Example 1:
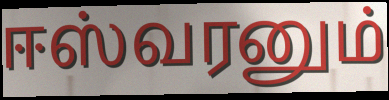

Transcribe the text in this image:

ஈஸ்வரனும்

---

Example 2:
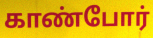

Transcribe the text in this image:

காண்போர்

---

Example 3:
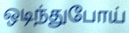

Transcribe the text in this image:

ஒடிந்துபோய்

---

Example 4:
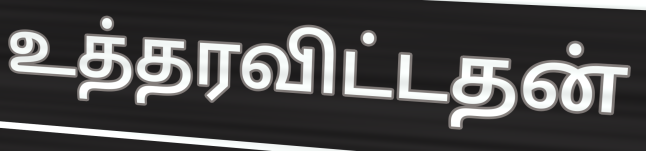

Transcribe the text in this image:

உத்தரவிட்டதன்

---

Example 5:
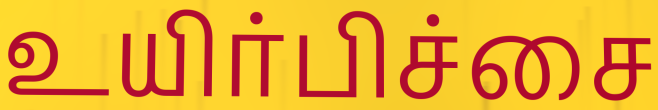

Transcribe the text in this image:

உயிர்பிச்சை